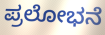
ಪ್ರಲೋಭನೆ